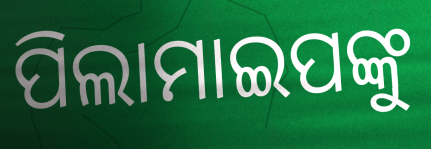
ପିଲାମାଇପଙ୍କୁ